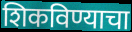
शिकविण्याचा